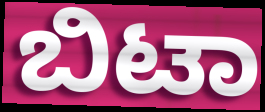
ಬಿಟಾ